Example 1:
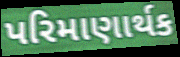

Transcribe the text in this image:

પરિમાણાર્થક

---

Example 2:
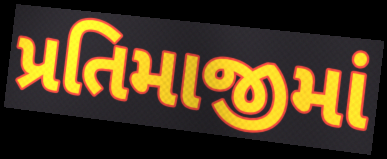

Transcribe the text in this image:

પ્રતિમાજીમાં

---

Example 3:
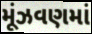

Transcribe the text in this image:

મૂંઝવણમાં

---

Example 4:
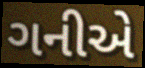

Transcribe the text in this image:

ગનીએ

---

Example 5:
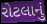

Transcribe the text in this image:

રોટલાનું